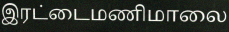
இரட்டைமணிமாலை